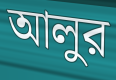
আলুর